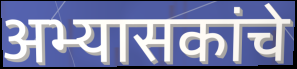
अभ्यासकांचे